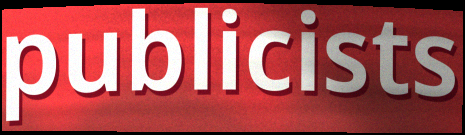
publicists